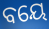
ବୟେ